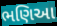
ભણિઆ